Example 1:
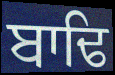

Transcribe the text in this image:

ਬਾਢਿ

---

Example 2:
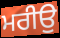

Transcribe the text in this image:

ਮਰੀਉ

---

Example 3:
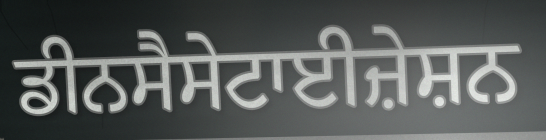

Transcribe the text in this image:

ਡੀਨਸੈਸੇਟਾਈਜ਼ੇਸ਼ਨ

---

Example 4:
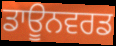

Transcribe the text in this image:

ਡਾਊਨਵਰਡ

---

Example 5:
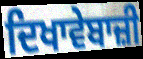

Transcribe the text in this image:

ਦਿਖਾਵੇਬਾਜ਼ੀ